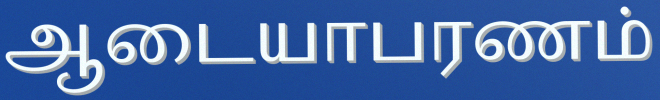
ஆடையாபரணம்